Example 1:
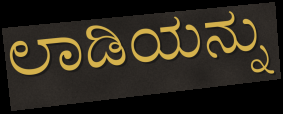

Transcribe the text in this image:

ಲಾಡಿಯನ್ನು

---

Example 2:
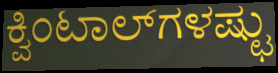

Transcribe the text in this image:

ಕ್ವಿಂಟಾಲ್‌ಗಳಷ್ಟು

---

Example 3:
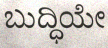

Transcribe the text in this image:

ಬುದ್ಧಿಯೇ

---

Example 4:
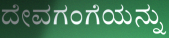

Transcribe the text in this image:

ದೇವಗಂಗೆಯನ್ನು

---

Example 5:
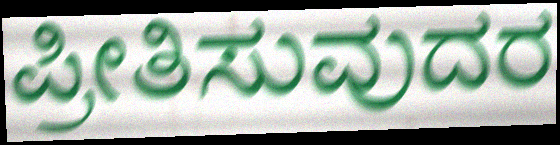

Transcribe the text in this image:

ಪ್ರೀತಿಸುವುದರ